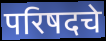
परिषदचे